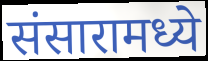
संसारामध्ये